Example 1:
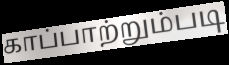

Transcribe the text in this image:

காப்பாற்றும்படி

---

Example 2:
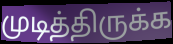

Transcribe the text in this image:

முடித்திருக்க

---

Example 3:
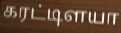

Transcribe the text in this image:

கரட்டிளயா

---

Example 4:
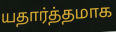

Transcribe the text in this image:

யதார்த்தமாக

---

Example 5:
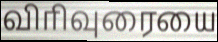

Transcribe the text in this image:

விரிவுரையை